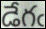
డేగఁ